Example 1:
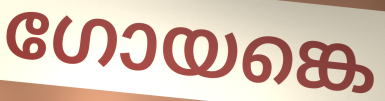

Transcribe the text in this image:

ഗോയങ്കെ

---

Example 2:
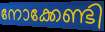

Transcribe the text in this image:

നോക്കേണ്ടി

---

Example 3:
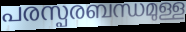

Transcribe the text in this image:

പരസ്പരബന്ധമുള്ള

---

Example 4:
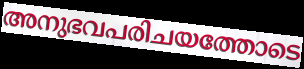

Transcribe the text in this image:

അനുഭവപരിചയത്തോടെ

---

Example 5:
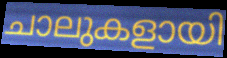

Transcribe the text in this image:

ചാലുകളായി